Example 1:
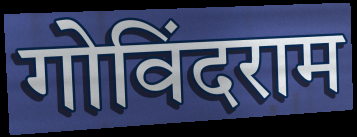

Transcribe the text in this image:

गोविंदराम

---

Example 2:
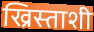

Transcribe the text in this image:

ख्रिस्ताशी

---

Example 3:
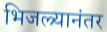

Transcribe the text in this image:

भिजल्यानंतर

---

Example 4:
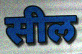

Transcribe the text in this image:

सील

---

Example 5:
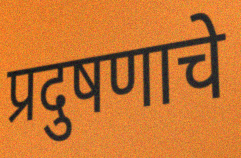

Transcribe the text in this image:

प्रदुषणाचे